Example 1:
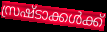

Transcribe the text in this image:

സ്രഷ്ടാക്കൾക്ക്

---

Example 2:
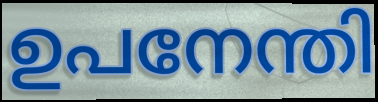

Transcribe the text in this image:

ഉപനേന്തി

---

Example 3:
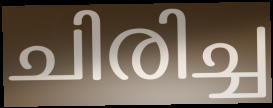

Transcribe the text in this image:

ചിരിച്ച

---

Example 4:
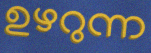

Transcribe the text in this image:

ഉഴറുന്ന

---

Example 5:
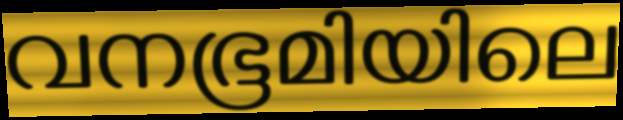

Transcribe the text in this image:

വനഭൂമിയിലെ